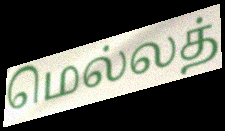
மெல்லத்